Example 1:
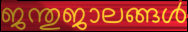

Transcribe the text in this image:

ജന്തുജാലങ്ങൾ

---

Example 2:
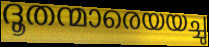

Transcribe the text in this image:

ദൂതന്മാരെയയച്ചു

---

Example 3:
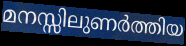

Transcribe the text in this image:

മനസ്സിലുണർത്തിയ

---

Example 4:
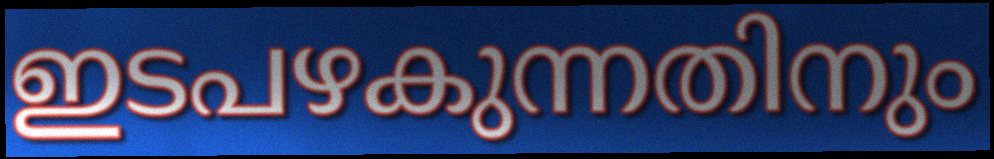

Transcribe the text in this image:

ഇടപഴകുന്നതിനും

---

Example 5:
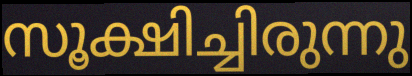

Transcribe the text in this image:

സൂക്ഷിച്ചിരുന്നു